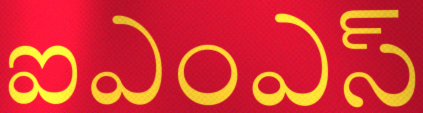
ఐఎంఎస్